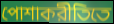
পোশাকরীতিতে